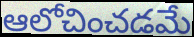
ఆలోచించడమే